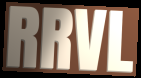
RRVL